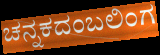
ಚನ್ನಕದಂಬಲಿಂಗ